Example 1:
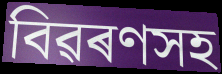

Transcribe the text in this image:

বিৱৰণসহ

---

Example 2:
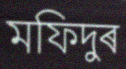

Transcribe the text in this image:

মফিদুৰ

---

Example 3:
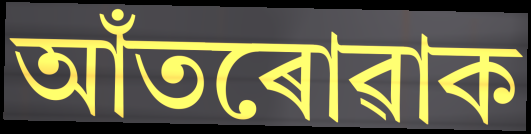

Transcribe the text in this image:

আঁতৰোৱাক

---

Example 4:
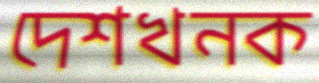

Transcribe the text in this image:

দেশখনক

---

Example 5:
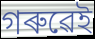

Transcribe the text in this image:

গৰুৱেই